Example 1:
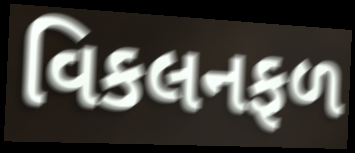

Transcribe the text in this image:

વિકલનફળ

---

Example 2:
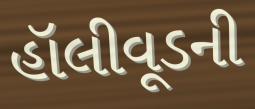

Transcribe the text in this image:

હૉલીવૂડની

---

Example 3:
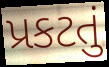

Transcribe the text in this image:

પ્રકટતું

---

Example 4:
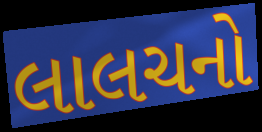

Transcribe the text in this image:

લાલચનો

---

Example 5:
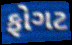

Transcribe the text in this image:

ફોગટ